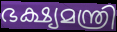
ഭക്ഷ്യമന്ത്രി